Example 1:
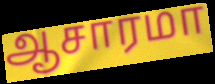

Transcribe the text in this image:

ஆசாரமா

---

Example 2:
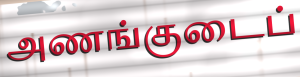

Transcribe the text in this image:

அணங்குடைப்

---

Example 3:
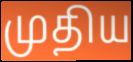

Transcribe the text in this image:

முதிய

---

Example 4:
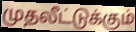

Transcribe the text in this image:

முதலீட்டுக்கும்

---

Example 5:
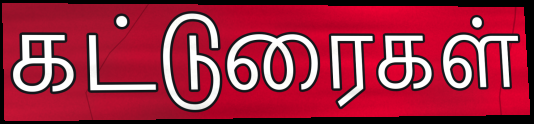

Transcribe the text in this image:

கட்டுரைகள்